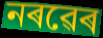
নৰৱেৰ